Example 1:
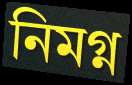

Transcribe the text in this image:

নিমগ্ন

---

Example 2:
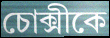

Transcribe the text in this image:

চোক্সীকে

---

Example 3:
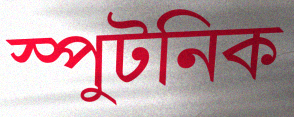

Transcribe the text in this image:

স্পুটনিক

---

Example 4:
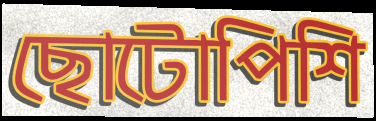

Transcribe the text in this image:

ছোটোপিশি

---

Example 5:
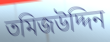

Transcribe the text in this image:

তমিজউদ্দিন